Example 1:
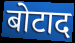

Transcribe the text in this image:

बोटाद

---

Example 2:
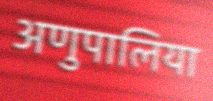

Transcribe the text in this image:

अणुपालिया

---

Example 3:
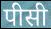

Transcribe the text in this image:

पीसी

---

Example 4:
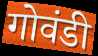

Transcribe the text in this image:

गोवंडी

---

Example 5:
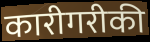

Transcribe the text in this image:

कारीगरीकी